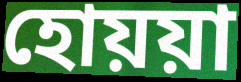
হোয়য়া